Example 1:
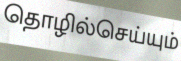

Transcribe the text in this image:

தொழில்செய்யும்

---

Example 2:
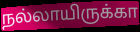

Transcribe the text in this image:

நல்லாயிருக்கா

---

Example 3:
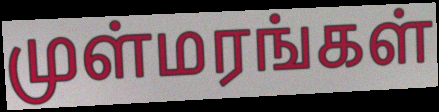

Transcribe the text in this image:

முள்மரங்கள்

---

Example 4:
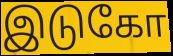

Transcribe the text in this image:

இடுகோ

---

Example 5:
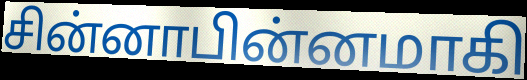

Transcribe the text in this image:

சின்னாபின்னமாகி